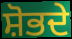
ਸ਼ੋਭਦੇ